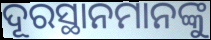
ଦୂରସ୍ଥାନମାନଙ୍କୁ